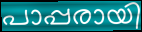
പാപ്പരായി